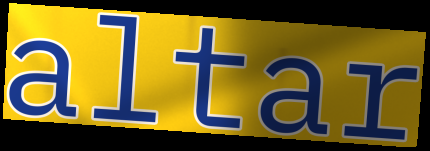
altar